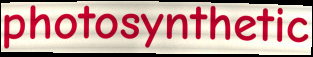
photosynthetic